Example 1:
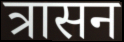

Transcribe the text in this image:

त्रासन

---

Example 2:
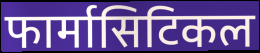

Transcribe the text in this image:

फार्मासिटिकल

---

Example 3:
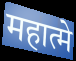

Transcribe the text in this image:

महात्मे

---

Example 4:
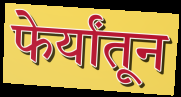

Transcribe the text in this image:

फेर्यांतून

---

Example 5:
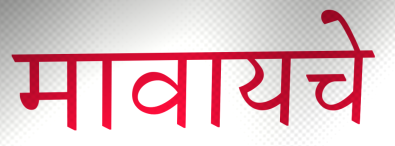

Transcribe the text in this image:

मावायचे